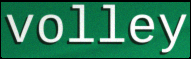
volley